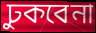
ঢুকবেনা